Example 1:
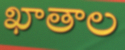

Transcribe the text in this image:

ఖాతాల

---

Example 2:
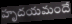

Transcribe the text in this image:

హృదయమందే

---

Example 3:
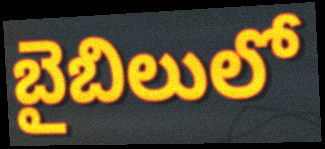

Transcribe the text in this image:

బైబిలులో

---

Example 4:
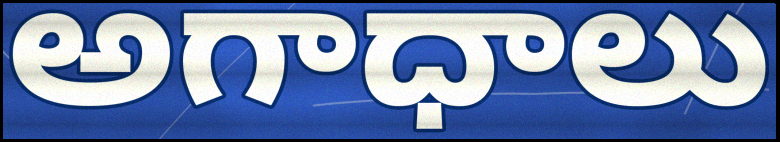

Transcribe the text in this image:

అగాధాలు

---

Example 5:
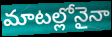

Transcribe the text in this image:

మాటల్లోనైనా